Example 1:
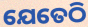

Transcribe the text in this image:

ଯେତେଠି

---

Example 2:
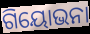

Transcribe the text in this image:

ଗିୟୋଭନା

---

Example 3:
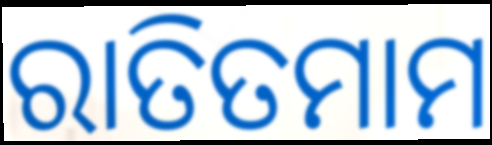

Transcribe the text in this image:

ରାତିତମାମ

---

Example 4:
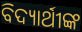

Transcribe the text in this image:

ବିଦ୍ୟାର୍ଥୀଙ୍କ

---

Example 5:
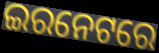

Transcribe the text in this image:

ଇରନେଟରେ